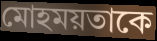
মোহময়তাকে